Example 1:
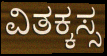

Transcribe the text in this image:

ವಿತಕ್ಕಸ್ಸ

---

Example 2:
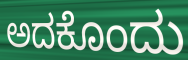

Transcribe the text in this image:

ಅದಕೊಂದು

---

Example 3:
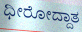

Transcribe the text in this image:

ಧೀರೋದ್ದಾತ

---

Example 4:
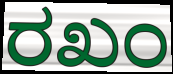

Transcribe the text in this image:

ರಖಂ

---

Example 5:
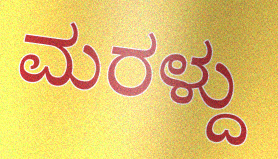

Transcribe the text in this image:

ಮರಳ್ದು